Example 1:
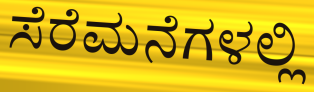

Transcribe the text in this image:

ಸೆರೆಮನೆಗಳಲ್ಲಿ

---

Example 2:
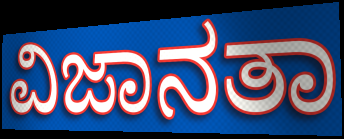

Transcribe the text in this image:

ವಿಜಾನತಾ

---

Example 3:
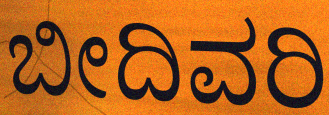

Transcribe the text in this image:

ಬೀದಿವರಿ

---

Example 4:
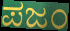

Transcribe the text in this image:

ಪಜಂ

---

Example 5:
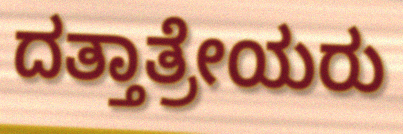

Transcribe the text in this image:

ದತ್ತಾತ್ರೇಯರು